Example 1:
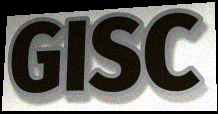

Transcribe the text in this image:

GISC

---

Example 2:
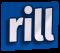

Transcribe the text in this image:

rill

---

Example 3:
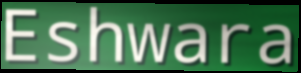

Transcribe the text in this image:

Eshwara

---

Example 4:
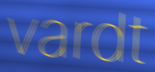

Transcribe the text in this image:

vardt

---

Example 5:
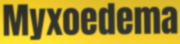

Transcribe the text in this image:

Myxoedema